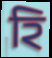
হি